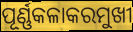
ପୂର୍ଣ୍ଣକଳାକରମୁଖୀ